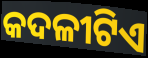
କଦଳୀଟିଏ